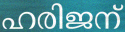
ഹരിജന്